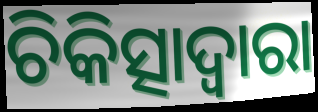
ଚିକିତ୍ସାଦ୍ଵାରା